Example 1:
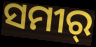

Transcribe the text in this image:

ସମୀର୍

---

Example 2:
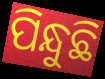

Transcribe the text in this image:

ପିନ୍ଧୁଛି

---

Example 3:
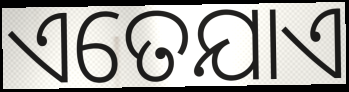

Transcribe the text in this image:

ଏତେଯାଏ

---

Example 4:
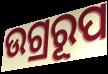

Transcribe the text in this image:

ଉଗ୍ରରୂପ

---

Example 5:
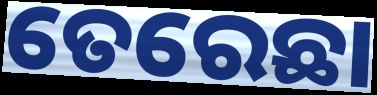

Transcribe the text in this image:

ତେରେଛା